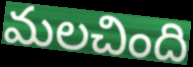
మలచింది